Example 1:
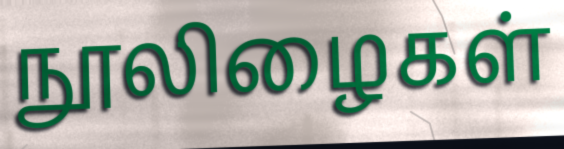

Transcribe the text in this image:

நூலிழைகள்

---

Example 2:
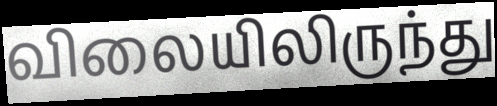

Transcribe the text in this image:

விலையிலிருந்து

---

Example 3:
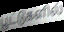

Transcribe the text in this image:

பூட்டுகளில்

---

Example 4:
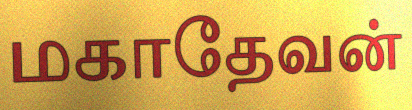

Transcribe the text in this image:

மகாதேவன்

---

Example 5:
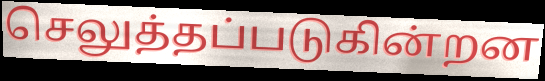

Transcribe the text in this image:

செலுத்தப்படுகின்றன